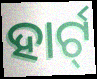
ହାର୍ଟ୍